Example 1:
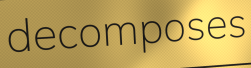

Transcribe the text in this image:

decomposes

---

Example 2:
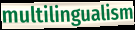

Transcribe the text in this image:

multilingualism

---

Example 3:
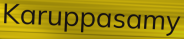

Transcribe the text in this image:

Karuppasamy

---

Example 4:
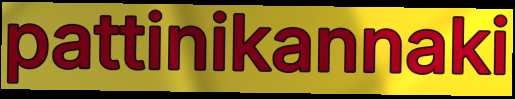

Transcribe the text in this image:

pattinikannaki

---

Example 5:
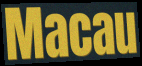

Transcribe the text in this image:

Macau